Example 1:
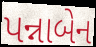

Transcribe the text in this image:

પન્નાબેન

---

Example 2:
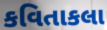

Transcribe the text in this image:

કવિતાકલા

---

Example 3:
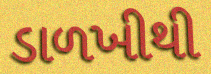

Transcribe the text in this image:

ડાળખીથી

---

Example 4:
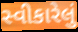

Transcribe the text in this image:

સ્વીકારેલું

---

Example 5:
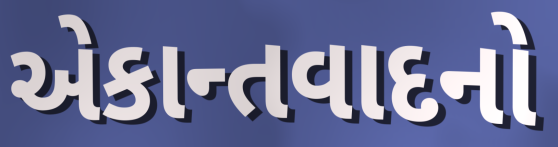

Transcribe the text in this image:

એકાન્તવાદનો